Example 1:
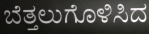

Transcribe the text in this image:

ಬೆತ್ತಲುಗೊಳಿಸಿದ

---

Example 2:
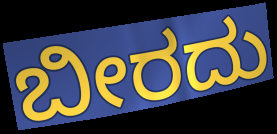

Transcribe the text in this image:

ಬೀರದು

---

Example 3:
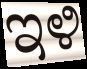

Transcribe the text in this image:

ಇಳಿ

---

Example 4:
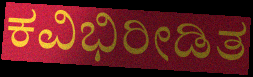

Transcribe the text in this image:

ಕವಿಭಿರೀಡಿತ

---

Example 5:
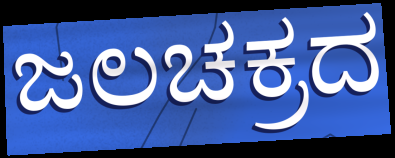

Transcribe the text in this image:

ಜಲಚಕ್ರದ